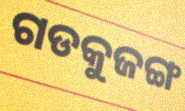
ଗଡକୁଜଙ୍ଗ